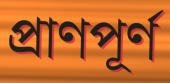
প্রাণপূর্ণ